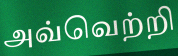
அவ்வெற்றி